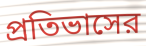
প্রতিভাসের